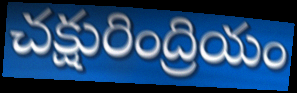
చక్షురింద్రియం